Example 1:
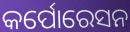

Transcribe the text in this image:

କର୍ପୋରେସନ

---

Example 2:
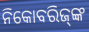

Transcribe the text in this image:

ନିକୋବରିଜ୍‍ଙ୍କ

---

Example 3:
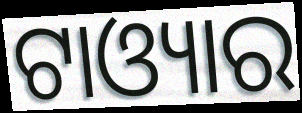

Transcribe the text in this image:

ଟାଓ୍ୟାର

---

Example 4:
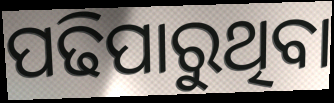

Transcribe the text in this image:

ପଢିପାରୁଥିବା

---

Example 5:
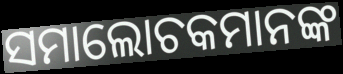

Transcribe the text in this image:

ସମାଲୋଚକମାନଙ୍କ